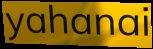
yahanai